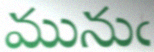
మునుఁ